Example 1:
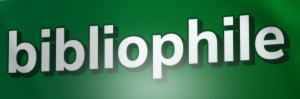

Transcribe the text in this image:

bibliophile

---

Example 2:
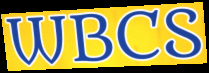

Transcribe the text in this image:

WBCS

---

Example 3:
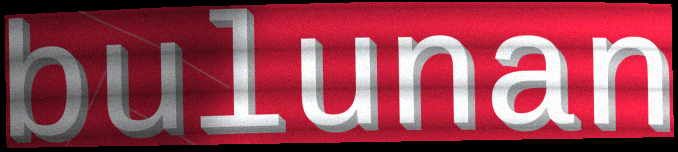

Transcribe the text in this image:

bulunan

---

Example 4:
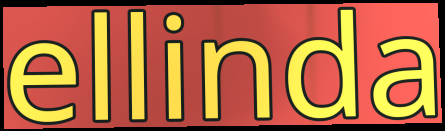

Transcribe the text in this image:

ellinda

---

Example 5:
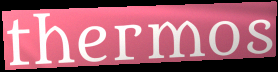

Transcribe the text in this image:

thermos